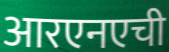
आरएनएची